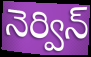
నెర్విన్